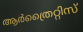
ആർത്രൈറ്റിസ്